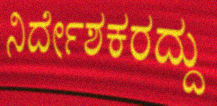
ನಿರ್ದೇಶಕರದ್ದು